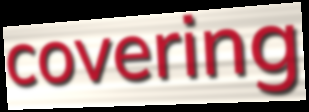
covering